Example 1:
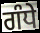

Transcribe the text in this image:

ਗੰਧੇ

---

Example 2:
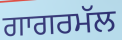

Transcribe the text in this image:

ਗਾਗਰਮੱਲ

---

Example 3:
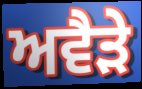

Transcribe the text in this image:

ਅਵੈੜੇ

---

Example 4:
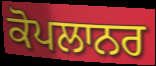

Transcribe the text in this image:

ਕੋਪਲਾਨਰ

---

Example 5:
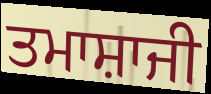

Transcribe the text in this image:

ਤਮਾਸ਼ਾਜੀ